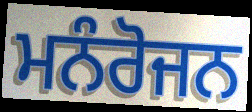
ਮਨੰਰੋਜਨ